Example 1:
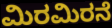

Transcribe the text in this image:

ಮಿರಮಿರನೆ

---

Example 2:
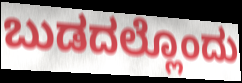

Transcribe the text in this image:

ಬುಡದಲ್ಲೊಂದು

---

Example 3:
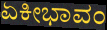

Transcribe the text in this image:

ಏಕೀಭಾವಂ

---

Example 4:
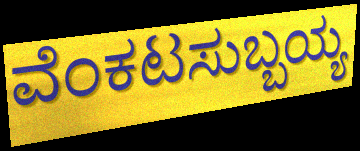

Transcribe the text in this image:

ವೆಂಕಟಸುಬ್ಬಯ್ಯ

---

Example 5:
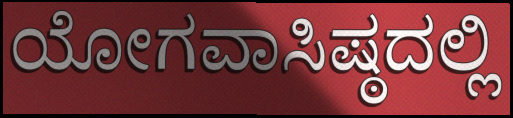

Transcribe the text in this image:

ಯೋಗವಾಸಿಷ್ಠದಲ್ಲಿ